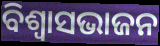
ବିଶ୍ୱାସଭାଜନ